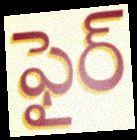
ఫైర్